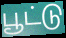
பூட்டு